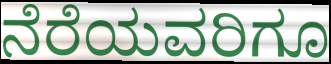
ನೆರೆಯವರಿಗೂ